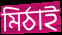
মিঠাই